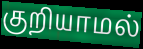
குறியாமல்